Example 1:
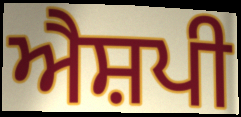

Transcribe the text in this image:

ਐਸ਼ਪੀ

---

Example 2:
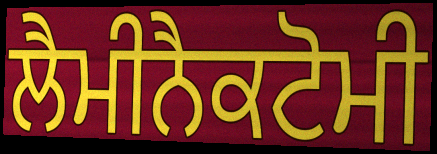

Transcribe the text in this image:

ਲੈਮੀਨੈਕਟੋਮੀ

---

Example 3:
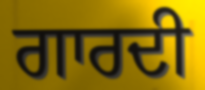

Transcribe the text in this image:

ਗਾਰਦੀ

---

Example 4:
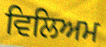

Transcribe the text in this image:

ਵਿਲਿਅਮ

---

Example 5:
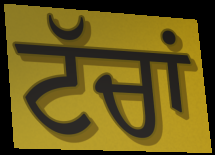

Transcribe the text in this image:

ਟੱਚਾਂ